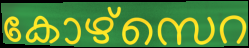
കോഴ്സെറ